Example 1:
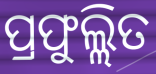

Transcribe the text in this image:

ପ୍ରଫୁଲ୍ଲିତ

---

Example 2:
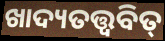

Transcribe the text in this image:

ଖାଦ୍ୟତତ୍ତ୍ୱବିତ୍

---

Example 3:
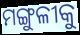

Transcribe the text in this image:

ମଙ୍ଗୁଳୀକୁ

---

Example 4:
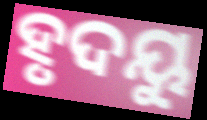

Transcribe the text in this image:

ହୃଦୟୁ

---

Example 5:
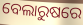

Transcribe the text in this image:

ବେଲାରୁଷରେ